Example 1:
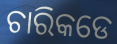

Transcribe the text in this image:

ଚାରିକଡେ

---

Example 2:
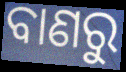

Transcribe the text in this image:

ବାଣରୁ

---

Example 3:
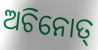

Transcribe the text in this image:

ଅଚିନୋତ୍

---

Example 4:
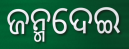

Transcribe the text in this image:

ଜନ୍ମଦେଇ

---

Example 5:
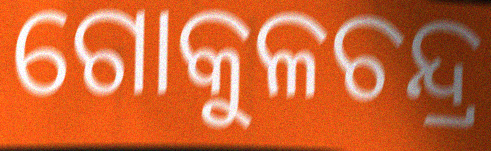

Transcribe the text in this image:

ଗୋକୁଳଚନ୍ଦ୍ର